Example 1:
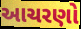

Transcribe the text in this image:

આચરણો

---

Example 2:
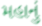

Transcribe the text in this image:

મહાનું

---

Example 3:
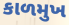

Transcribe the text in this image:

કાળમુખ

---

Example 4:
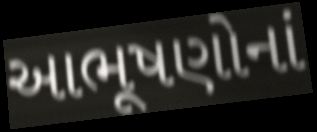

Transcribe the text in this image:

આભૂષણોનાં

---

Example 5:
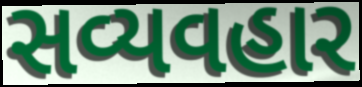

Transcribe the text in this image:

સવ્યવહાર